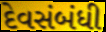
દેવસંબંધી